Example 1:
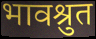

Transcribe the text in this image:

भावश्रुत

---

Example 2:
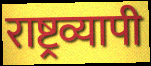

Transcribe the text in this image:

राष्ट्रव्यापी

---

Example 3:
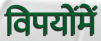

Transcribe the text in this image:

विपयोंमें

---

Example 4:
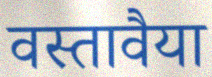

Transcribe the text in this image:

वस्तावैया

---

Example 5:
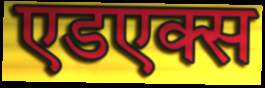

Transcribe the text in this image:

एडएक्स